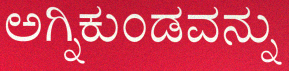
ಅಗ್ನಿಕುಂಡವನ್ನು